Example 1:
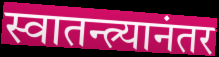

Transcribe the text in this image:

स्वातन्त्र्यानंतर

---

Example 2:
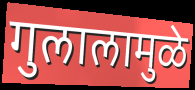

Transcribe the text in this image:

गुलालामुळे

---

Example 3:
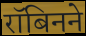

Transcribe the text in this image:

रॉबिनने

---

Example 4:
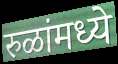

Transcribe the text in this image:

रुळांमध्ये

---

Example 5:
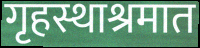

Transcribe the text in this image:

गृहस्थाश्रमात